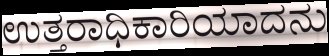
ಉತ್ತರಾಧಿಕಾರಿಯಾದನು